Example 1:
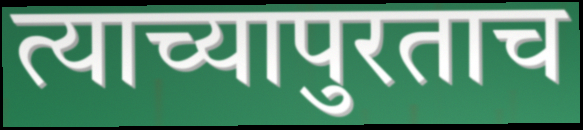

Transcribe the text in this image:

त्याच्यापुरताच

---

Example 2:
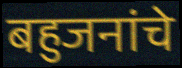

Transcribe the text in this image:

बहुजनांचे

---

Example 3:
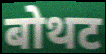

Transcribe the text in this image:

बोथट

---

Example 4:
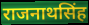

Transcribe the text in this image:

राजनाथसिंह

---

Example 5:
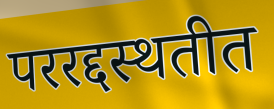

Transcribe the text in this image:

पररद्दस्थतीत